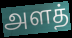
அளத்